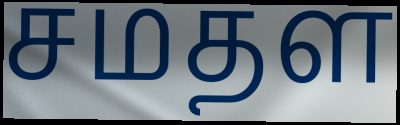
சமதள